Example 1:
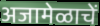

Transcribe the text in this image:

अजामेळाचें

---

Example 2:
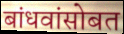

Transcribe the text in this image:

बांधवांसोबत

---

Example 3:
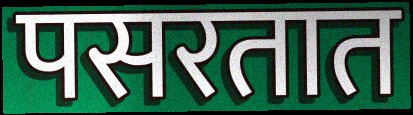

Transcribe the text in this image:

पसरतात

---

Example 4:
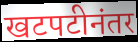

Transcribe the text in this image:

खटपटीनंतर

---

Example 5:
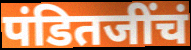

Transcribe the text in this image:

पंडितजींचं